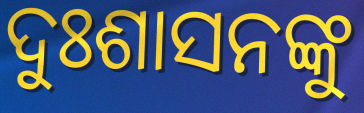
ଦୁଃଶାସନଙ୍କୁ